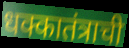
धक्कातंत्राची